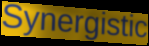
Synergistic